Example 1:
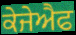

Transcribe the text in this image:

ਕੇਜੇਐਫ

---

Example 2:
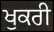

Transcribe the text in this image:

ਖੁਕਰੀ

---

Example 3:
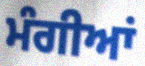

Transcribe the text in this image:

ਮੰਗੀਆਂ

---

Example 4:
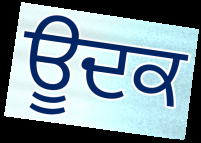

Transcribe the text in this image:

ਊਦਕ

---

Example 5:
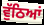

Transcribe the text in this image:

ਵੁੱਠਿਆਂ